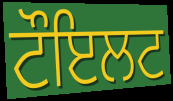
ਟੌਇਲਟ